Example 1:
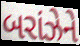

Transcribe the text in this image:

બરાંઝેને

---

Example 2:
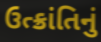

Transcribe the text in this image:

ઉત્ક્રાંતિનું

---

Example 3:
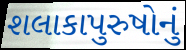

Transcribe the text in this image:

શલાકાપુરુષોનું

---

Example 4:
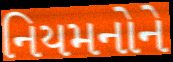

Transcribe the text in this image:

નિયમનોને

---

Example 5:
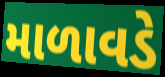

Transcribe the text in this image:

માળાવડે